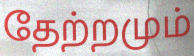
தேற்றமும்